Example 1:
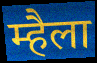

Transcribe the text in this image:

म्हैला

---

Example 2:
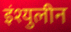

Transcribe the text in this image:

इंश्युलीन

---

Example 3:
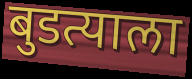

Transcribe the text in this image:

बुडत्याला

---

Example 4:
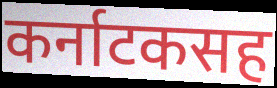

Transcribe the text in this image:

कर्नाटकसह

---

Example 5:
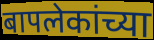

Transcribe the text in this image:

बापलेकांच्या